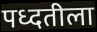
पध्दतीला